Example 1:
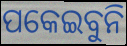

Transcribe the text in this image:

ପକେଇବୁନି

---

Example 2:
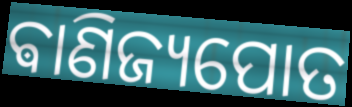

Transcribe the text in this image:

ଵାଣିଜ୍ୟପୋତ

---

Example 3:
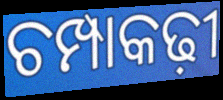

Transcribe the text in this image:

ଚମ୍ପାକଢ଼ୀ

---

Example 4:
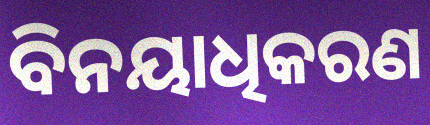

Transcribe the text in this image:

ବିନୟାଧିକରଣ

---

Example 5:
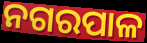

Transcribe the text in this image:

ନଗରପାଳ